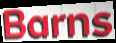
Barns